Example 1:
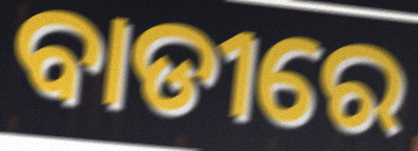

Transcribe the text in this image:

ବାଡୀରେ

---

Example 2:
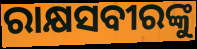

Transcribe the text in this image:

ରାକ୍ଷସବୀରଙ୍କୁ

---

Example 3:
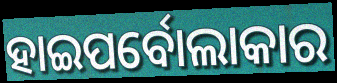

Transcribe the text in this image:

ହାଇପର୍ବୋଲାକାର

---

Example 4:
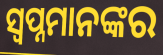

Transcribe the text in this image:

ସ୍ବପ୍ନମାନଙ୍କର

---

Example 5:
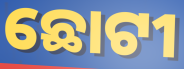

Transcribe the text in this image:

ଛୋଟୀ